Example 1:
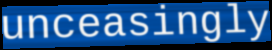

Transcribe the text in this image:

unceasingly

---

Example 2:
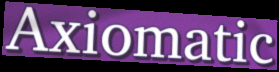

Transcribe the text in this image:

Axiomatic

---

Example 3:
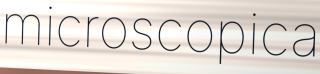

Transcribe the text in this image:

microscopica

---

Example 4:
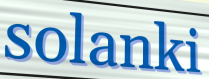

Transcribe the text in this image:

solanki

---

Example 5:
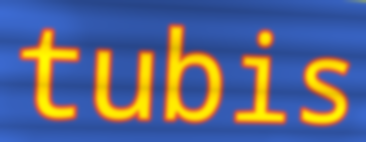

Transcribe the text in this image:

tubis